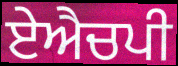
ਏਐਚਪੀ